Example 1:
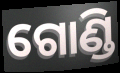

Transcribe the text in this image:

ଗୋଣ୍ଡି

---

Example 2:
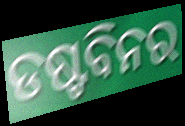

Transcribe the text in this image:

ଡଷ୍ଟବିନର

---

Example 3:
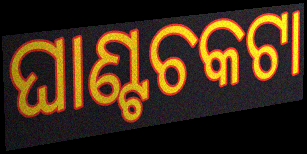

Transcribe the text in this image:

ଘାଣ୍ଟଚକଟା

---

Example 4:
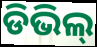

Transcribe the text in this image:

ଡିଭିଲ୍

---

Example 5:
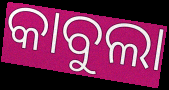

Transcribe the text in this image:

କାବୁଲା